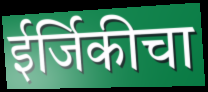
ईर्जिकीचा